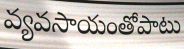
వ్యవసాయంతోపాటు